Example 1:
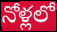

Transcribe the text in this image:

నోళ్లలో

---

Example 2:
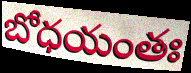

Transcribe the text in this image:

బోధయంతః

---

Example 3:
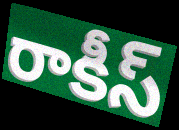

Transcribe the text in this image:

రాకీస్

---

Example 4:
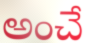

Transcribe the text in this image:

అంచే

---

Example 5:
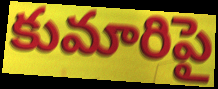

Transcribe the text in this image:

కుమారిపై